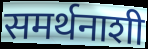
समर्थनाशी